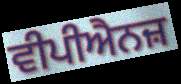
ਵੀਪੀਐਨਜ਼